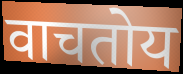
वाचतोय